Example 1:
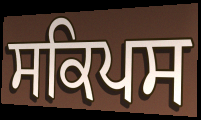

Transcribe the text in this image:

ਸਕਿਪਸ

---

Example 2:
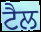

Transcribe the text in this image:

ਟੈਲ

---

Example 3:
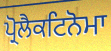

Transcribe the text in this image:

ਪ੍ਰੋਲੈਕਟਿਨੋਮਾ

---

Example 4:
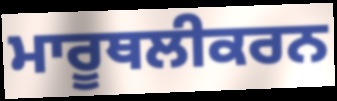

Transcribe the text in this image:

ਮਾਰੂਥਲੀਕਰਨ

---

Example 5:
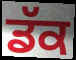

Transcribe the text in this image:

ਡੱਕ